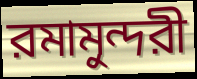
রমামুন্দরী